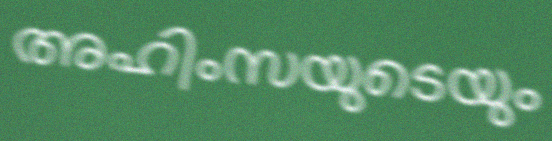
അഹിംസയുടെയും